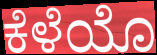
ಕೆಳೆಯೊ